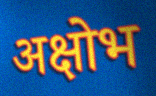
अक्षोभ